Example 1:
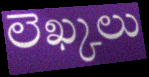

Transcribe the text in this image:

లెఖ్కలు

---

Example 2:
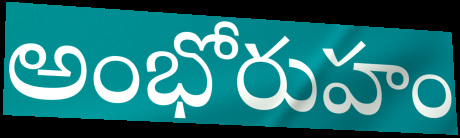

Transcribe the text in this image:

అంభోరుహం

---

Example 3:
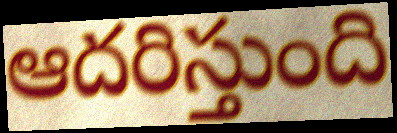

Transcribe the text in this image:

ఆదరిస్తుంది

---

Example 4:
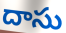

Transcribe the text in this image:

దాసు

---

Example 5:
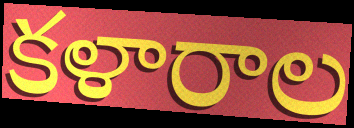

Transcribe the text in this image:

కళారాల